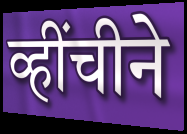
व्हींचीने